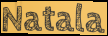
Natala